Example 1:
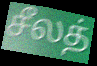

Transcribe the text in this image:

சீலத்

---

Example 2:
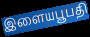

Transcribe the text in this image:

இளையபூபதி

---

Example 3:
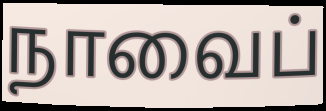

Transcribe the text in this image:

நாவைப்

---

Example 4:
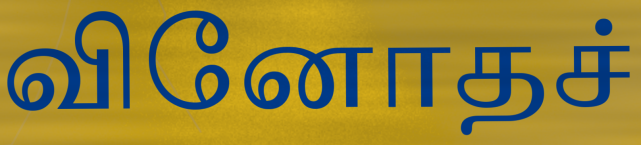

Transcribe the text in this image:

வினோதச்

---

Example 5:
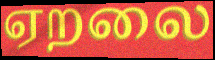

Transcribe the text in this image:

ஏறலை